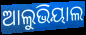
ଆଲୁଭିୟାଲ